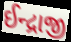
ઈન્દ્રાજી